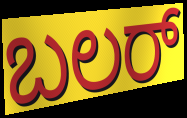
ಬಲರ್